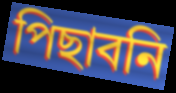
পিছাবনি